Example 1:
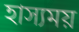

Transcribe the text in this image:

হাস্যময়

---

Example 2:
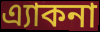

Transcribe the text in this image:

এ্যাকনা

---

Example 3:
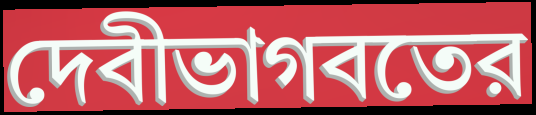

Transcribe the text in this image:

দেবীভাগবতের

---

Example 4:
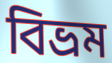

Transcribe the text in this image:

বিভ্রম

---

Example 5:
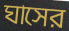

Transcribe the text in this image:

ঘাসের